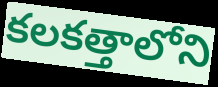
కలకత్తాలోని